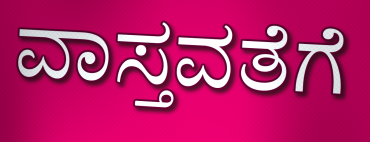
ವಾಸ್ತವತೆಗೆ